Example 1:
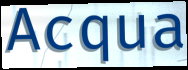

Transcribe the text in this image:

Acqua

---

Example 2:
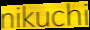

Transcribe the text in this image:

nikuchi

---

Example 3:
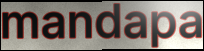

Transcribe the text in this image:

mandapa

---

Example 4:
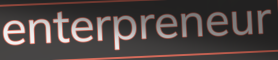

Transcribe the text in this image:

enterpreneur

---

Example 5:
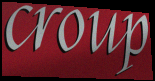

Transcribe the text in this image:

croup